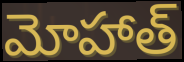
మోహాత్